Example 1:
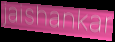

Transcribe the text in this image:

jaishankar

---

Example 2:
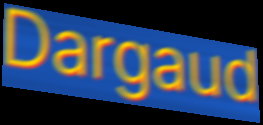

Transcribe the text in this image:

Dargaud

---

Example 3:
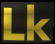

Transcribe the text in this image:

Lk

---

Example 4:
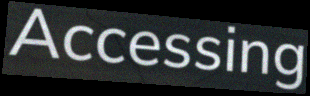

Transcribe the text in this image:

Accessing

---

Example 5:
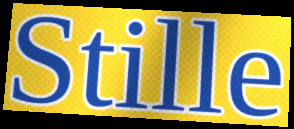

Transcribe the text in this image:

Stille